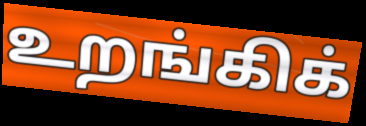
உறங்கிக்